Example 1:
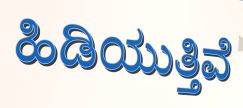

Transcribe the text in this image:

ಹಿಡಿಯುತ್ತಿವೆ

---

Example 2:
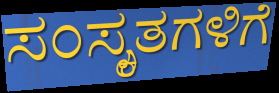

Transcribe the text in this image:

ಸಂಸ್ಕೃತಗಳಿಗೆ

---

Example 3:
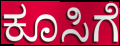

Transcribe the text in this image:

ಕೂಸಿಗೆ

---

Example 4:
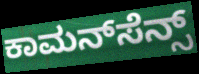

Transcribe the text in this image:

ಕಾಮನ್‌ಸೆನ್ಸ್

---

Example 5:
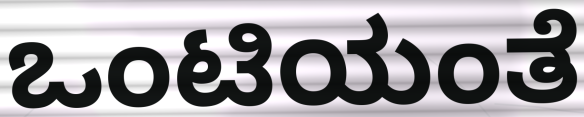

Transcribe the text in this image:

ಒಂಟಿಯಂತೆ